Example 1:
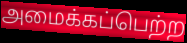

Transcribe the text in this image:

அமைக்கப்பெற்ற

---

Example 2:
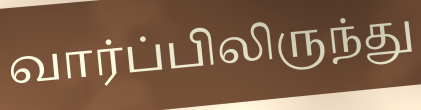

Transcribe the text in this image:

வார்ப்பிலிருந்து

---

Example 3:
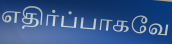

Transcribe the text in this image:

எதிர்ப்பாகவே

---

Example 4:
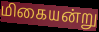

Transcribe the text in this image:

மிகையன்று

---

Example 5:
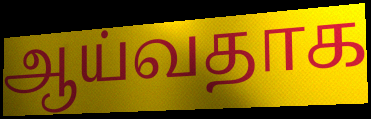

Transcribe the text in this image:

ஆய்வதாக